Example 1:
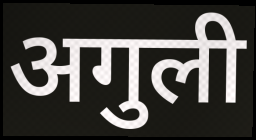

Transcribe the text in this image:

अगुली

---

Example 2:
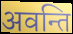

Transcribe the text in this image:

अवन्ति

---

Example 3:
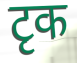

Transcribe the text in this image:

टृक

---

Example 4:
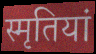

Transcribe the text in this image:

स्मृतियां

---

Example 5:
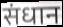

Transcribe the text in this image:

संधान